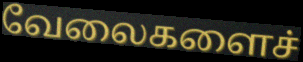
வேலைகளைச்